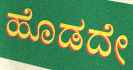
ಹೊಡದೇ